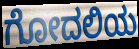
ಗೋದಲಿಯ